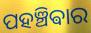
ପହଞ୍ଚିଵାର